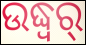
ଉଦ୍ଧ୍ୱର୍